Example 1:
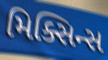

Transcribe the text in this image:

મિક્સિન્સ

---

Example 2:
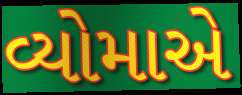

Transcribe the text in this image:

વ્યોમાએ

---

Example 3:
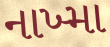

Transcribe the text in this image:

નાખ્મા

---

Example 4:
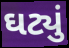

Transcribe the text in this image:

ઘટ્યું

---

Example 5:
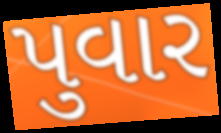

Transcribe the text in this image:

પુવાર